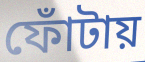
ফোঁটায়